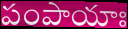
పంపాయాః